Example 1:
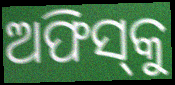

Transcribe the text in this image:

ଅଫିସ୍‌କୁ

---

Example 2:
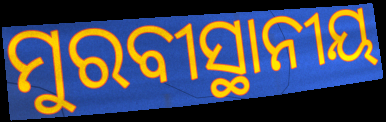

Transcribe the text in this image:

ମୁରବୀସ୍ଥାନୀୟ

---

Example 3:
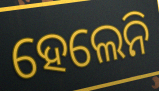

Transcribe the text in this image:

ହେଲେନି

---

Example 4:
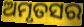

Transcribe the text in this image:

ଅମୃତସର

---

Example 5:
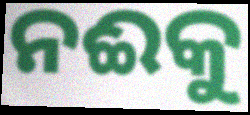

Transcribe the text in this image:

ନଈକୁ